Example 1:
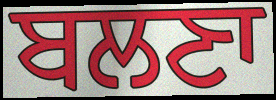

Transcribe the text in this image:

ਬਲਣਾ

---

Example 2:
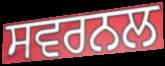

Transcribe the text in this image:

ਸਵਰਨਲ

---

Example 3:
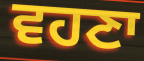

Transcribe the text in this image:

ਵਹਣਾ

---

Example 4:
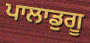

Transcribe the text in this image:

ਪਾਲਾਡੁਗੂ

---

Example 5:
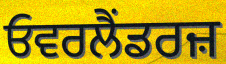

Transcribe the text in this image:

ਓਵਰਲੈਂਡਰਜ਼